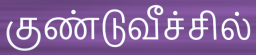
குண்டுவீச்சில்